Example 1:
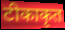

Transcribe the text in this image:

टीकाकृत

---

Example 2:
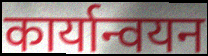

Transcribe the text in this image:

कार्यान्‍वयन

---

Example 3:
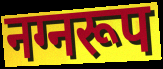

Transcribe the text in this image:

नग्नरूप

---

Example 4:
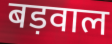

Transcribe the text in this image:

बड़वाल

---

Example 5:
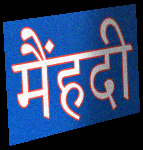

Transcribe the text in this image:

मैंहदी